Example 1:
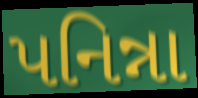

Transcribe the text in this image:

પનિન્ના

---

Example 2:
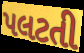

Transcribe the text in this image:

પલટતી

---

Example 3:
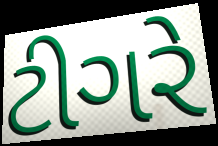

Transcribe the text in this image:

ટીગરે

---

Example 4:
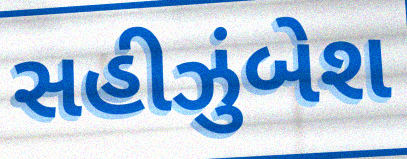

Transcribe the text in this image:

સહીઝુંબેશ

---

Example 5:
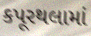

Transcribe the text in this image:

કપૂરથલામાં